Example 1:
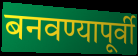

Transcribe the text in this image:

बनवण्यापूर्वी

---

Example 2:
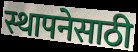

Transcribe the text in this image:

स्थापनेसाठी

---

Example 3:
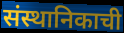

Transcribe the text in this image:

संस्थानिकाची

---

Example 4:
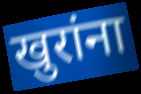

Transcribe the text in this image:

खुरांना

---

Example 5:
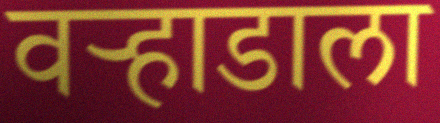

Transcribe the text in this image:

वऱ्हाडाला